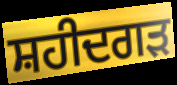
ਸ਼ਹੀਦਗੜ